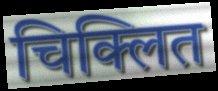
चिक्लित